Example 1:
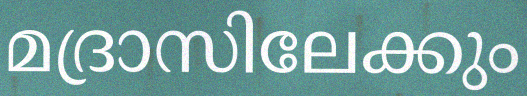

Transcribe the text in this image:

മദ്രാസിലേക്കും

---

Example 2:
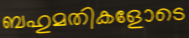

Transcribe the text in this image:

ബഹുമതികളോടെ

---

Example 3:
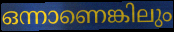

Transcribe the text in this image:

ഒന്നാണെങ്കിലും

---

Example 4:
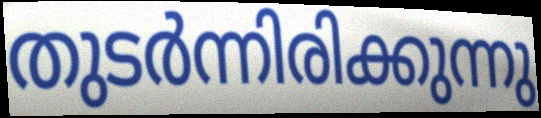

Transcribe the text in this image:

തുടർന്നിരിക്കുന്നു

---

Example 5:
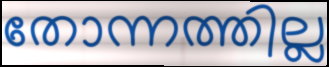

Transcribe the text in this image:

തോന്നത്തില്ല